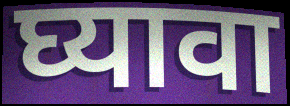
घ्यावा